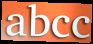
abcc